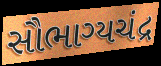
સૌભાગ્યચંદ્ર